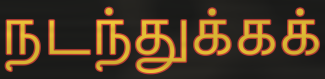
நடந்துக்கக்